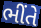
ભીંતે